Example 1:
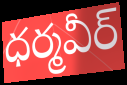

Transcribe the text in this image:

ధర్మవీర్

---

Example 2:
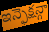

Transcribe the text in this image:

ఇన్ఫెక్షన్గా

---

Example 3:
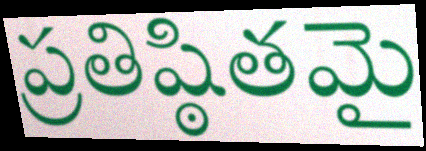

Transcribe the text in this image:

ప్రతిష్ఠితమై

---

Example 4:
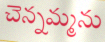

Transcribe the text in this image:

చెన్నమ్మను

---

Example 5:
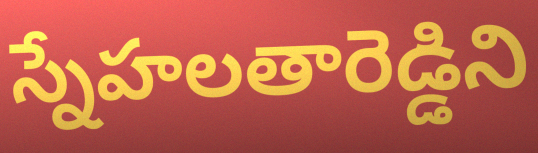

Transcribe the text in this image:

స్నేహలతారెడ్డిని